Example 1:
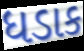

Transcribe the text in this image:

ધડાક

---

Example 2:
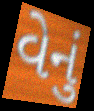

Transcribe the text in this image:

વેનું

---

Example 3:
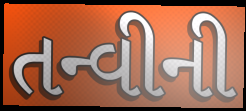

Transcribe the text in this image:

તન્વીની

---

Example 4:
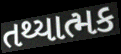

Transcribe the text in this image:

તથ્યાત્મક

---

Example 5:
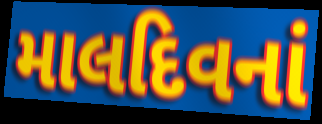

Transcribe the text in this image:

માલદિવનાં